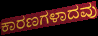
ಕಾರಣಗಳಾದವು